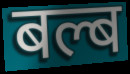
बल्‍ब